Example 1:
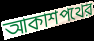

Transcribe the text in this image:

আকাশপথের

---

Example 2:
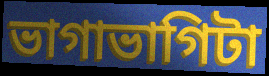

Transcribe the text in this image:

ভাগাভাগিটা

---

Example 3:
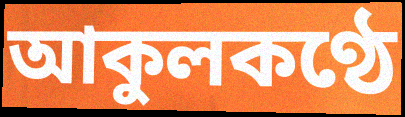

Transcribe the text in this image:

আকুলকণ্ঠে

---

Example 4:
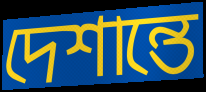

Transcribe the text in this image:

দেশান্তে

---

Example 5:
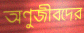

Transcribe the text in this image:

অণুজীবদের